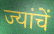
ज्यांचें